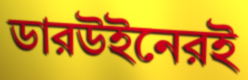
ডারউইনেরই